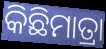
କିଛିମାତ୍ରା